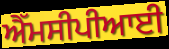
ਐੱਮਸੀਪੀਆਈ